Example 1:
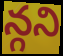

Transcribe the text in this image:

న్గని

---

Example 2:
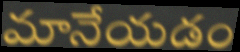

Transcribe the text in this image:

మానేయడం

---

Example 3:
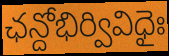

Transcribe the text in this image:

ఛన్దోభిర్వివిధైః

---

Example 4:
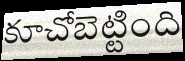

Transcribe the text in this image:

కూచోబెట్టింది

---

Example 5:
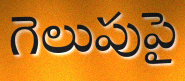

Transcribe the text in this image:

గెలుపుపై